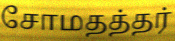
சோமதத்தர்